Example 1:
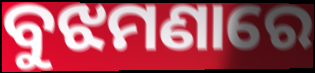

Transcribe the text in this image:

ବୁଝମଣାରେ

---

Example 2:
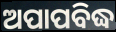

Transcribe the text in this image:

ଅପାପବିଦ୍ଧ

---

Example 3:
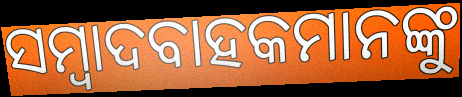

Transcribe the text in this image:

ସମ୍ବାଦବାହକମାନଙ୍କୁ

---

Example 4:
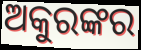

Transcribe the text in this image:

ଅକୁରଙ୍କର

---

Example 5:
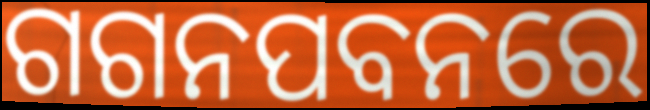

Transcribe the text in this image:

ଗଗନପବନରେ